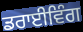
ਡਰਾਈਵਿੰਗ